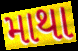
માથા